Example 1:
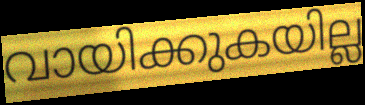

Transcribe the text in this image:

വായിക്കുകയില്ല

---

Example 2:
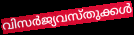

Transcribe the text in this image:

വിസർജ്യവസ്തുക്കൾ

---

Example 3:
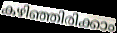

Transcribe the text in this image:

കഴിഞ്ഞിരിക്കാം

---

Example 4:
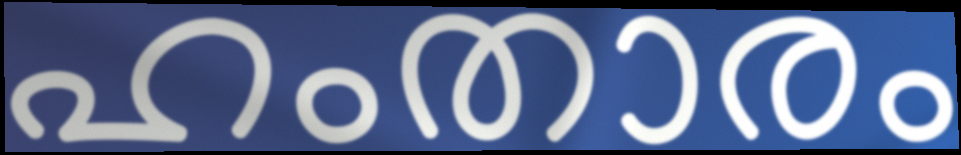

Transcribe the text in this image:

ഹംതാരം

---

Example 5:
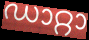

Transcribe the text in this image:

ഡാറ്റാ